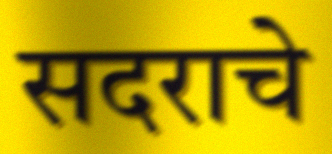
सदराचे